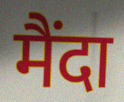
मैंदा